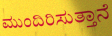
ಮುಂದಿರಿಸುತ್ತಾನೆ